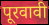
पूरवावी